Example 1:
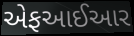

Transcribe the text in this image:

એફઆઈઆર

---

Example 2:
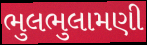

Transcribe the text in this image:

ભુલભુલામણી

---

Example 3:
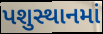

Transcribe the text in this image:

પશુસ્થાનમાં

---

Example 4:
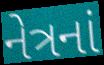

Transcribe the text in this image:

નેત્રનાં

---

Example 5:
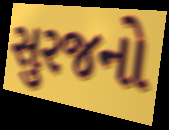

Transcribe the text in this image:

સુરજનો